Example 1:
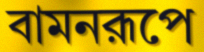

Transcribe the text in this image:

বামনরূপে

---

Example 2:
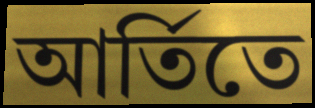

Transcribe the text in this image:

আর্তিতে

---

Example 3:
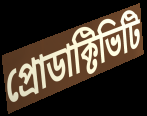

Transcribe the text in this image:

প্রোডাক্টিভিটি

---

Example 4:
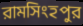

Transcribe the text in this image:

রামসিংহপুর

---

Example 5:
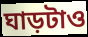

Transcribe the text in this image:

ঘাড়টাও